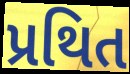
પ્રથિત